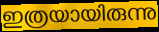
ഇത്രയായിരുന്നു